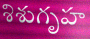
శిశుగృహ